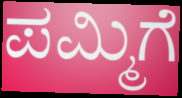
ಪಮ್ಮಿಗೆ